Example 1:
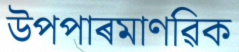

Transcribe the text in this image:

উপপাৰমাণৱিক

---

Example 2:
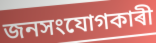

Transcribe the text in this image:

জনসংযোগকাৰী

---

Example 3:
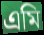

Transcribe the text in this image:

এমি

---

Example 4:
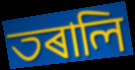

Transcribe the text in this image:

তৰালি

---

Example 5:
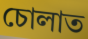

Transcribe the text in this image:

চোলাত